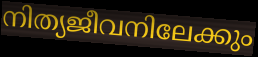
നിത്യജീവനിലേക്കും